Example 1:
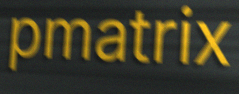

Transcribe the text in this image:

pmatrix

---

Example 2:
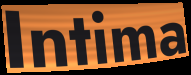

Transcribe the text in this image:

Intima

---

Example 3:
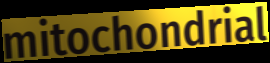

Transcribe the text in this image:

mitochondrial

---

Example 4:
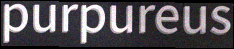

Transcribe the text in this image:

purpureus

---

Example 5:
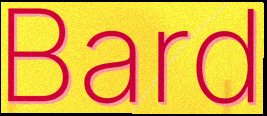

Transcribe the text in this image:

Bard